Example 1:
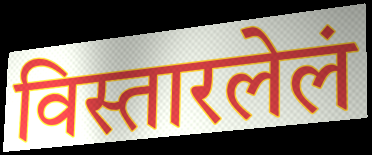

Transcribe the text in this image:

विस्तारलेलं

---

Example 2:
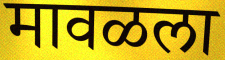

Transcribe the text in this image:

मावळला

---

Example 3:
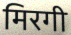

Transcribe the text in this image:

मिरगी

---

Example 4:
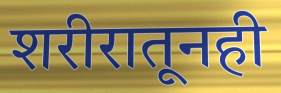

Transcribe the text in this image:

शरीरातूनही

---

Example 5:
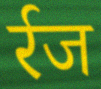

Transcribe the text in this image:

र्रज